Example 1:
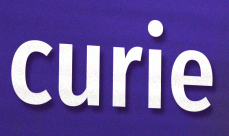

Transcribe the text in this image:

curie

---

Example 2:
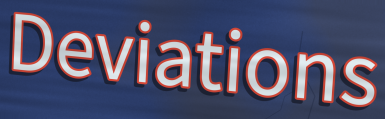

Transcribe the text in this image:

Deviations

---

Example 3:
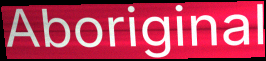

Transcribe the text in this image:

Aboriginal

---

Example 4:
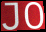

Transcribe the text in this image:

JO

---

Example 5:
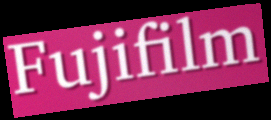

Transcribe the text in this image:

Fujifilm